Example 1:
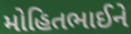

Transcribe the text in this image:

મોહિતભાઈને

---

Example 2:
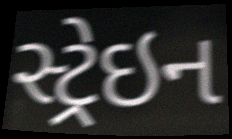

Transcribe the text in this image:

સ્ટ્રેઇન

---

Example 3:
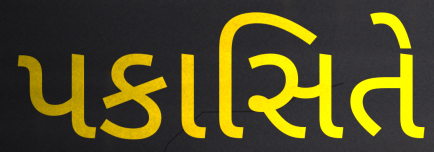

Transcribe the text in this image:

પકાસિતે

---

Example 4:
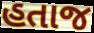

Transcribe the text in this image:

હતાજ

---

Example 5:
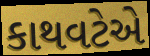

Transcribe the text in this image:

કાથવટેએ